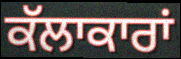
ਕੱਲਾਕਾਰਾਂ